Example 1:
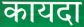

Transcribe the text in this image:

कायदा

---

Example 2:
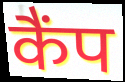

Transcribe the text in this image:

कैंप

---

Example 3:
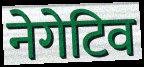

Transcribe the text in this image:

नेगेटिव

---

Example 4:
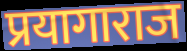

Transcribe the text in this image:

प्रयागाराज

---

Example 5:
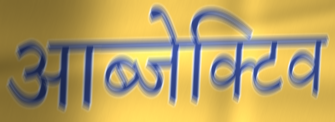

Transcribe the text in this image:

आब्जेक्टिव